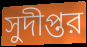
সুদীপ্তর